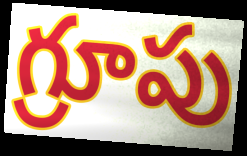
గ్రూపు